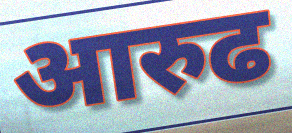
आरुढ